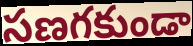
సణగకుండా